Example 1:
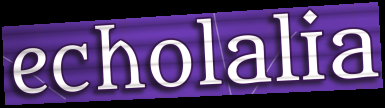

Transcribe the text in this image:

echolalia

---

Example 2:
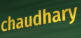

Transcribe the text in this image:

chaudhary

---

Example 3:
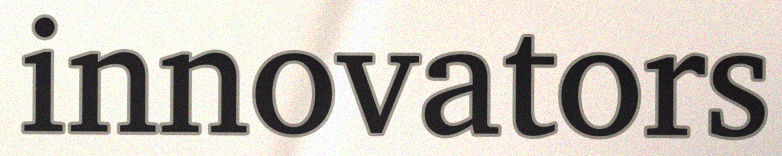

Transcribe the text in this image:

innovators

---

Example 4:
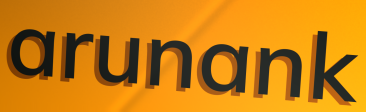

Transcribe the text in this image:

arunank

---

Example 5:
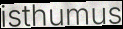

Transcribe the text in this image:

isthumus